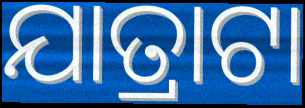
ଯାତ୍ରାଟା